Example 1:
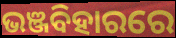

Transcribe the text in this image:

ଭଞ୍ଜବିହାରରେ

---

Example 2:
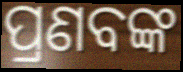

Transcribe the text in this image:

ପ୍ରଣବଙ୍କ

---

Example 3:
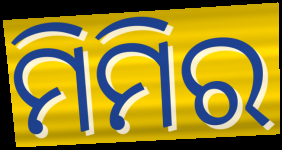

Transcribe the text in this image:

ମିମିର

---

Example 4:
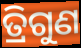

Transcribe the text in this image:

ତ୍ରିଗୁଣ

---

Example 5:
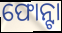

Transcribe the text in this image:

ଫୋନ୍ଟା